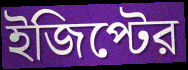
ইজিপ্টের